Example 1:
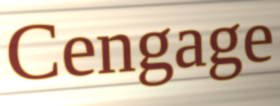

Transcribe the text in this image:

Cengage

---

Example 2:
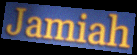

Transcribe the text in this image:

Jamiah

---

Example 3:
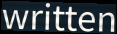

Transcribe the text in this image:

written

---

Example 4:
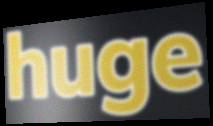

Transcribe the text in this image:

huge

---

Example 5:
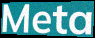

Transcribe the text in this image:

Meta